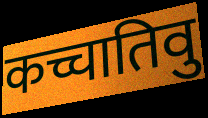
कच्चातिवु